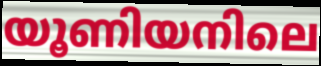
യൂണിയനിലെ